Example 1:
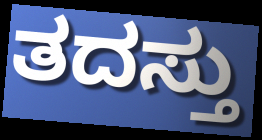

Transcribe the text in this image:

ತದಸ್ತು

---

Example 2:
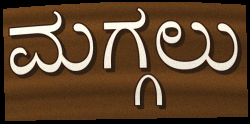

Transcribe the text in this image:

ಮಗ್ಗಲು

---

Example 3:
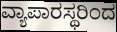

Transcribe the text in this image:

ವ್ಯಾಪಾರಸ್ಥರಿಂದ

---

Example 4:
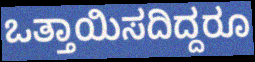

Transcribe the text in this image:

ಒತ್ತಾಯಿಸದಿದ್ದರೂ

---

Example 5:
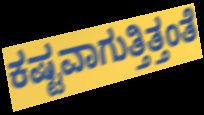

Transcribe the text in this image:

ಕಷ್ಟವಾಗುತ್ತಿತ್ತಂತೆ